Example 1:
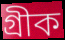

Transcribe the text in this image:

গ্রীক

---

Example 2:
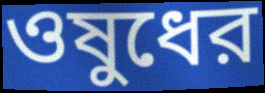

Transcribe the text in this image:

ওষুধের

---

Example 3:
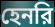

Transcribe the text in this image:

হেনরি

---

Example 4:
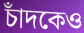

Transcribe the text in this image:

চাঁদকেও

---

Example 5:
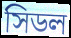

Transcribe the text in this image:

সিডল